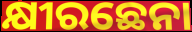
କ୍ଷୀରଛେନା